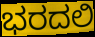
ಭರದಲಿ